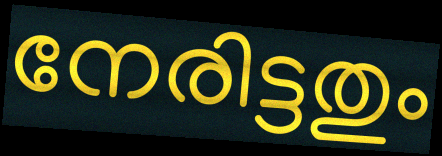
നേരിട്ടതും